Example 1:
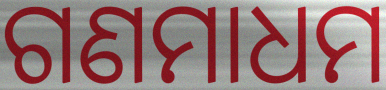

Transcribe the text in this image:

ଗଣମାଧମ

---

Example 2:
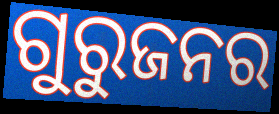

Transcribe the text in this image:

ଗୁରୁଜନର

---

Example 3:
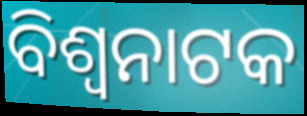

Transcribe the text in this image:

ବିଶ୍ୱନାଟକ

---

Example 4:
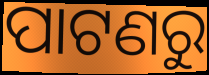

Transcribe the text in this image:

ପାଟଣରୁ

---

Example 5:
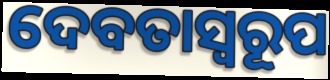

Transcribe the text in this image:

ଦେବତାସ୍ୱରୂପ